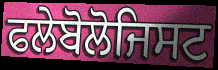
ਫਲੇਬੋਲੋਜਿਸਟ